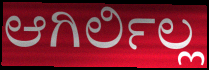
ಆಗಿರ್ಲಿಲ್ಲ